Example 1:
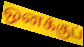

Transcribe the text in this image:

ஒனக்குப்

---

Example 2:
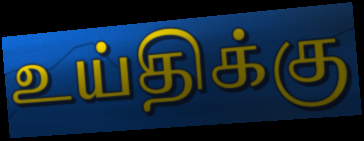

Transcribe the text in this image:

உய்திக்கு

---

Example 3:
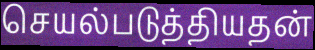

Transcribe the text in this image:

செயல்படுத்தியதன்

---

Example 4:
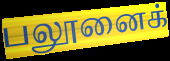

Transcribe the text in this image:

பலூனைக்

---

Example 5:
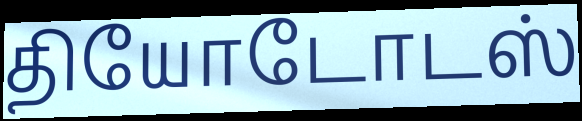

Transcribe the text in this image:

தியோடோடஸ்